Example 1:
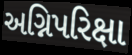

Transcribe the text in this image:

અગ્નિપરિક્ષા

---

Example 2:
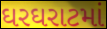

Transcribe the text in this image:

ઘરઘરાટમાં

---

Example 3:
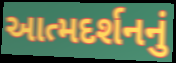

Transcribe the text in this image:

આત્મદર્શનનું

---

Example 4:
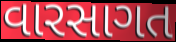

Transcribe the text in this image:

વારસાગત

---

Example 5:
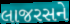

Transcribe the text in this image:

લાજરસને